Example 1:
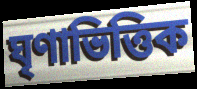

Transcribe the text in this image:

ঘৃণাভিত্তিক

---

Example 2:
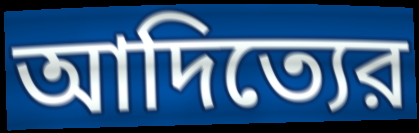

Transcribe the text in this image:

আদিত্যের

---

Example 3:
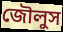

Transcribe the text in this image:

জৌলুস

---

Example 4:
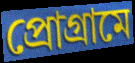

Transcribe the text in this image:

প্রোগ্রামে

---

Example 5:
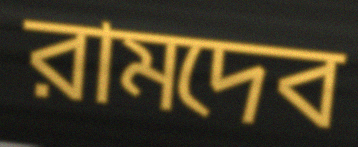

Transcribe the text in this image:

রামদেব